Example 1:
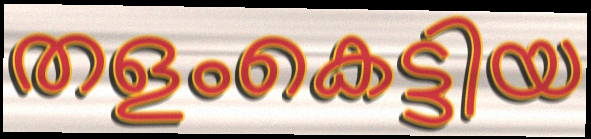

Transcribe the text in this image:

തളംകെട്ടിയ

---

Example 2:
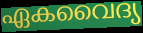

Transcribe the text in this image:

ഏകവൈദ്യ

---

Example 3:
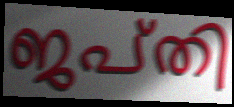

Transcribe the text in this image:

ജപ്‌തി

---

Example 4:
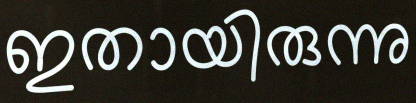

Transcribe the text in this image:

ഇതായിരുന്നു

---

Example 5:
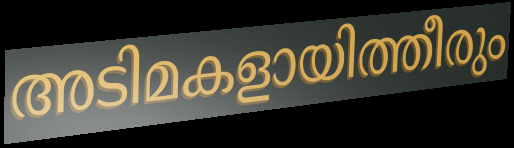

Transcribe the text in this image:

അടിമകളായിത്തീരും